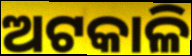
ଅଟକାଳି